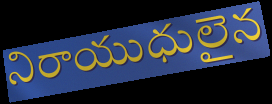
నిరాయుధులైన